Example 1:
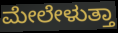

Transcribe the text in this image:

ಮೇಲೇಳುತ್ತಾ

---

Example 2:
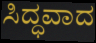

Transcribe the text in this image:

ಸಿದ್ಧವಾದ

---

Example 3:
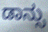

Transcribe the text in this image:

ಡಾನ್ಸು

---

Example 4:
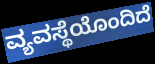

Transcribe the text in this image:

ವ್ಯವಸ್ಥೆಯೊಂದಿದೆ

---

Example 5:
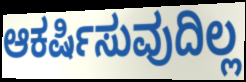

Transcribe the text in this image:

ಆಕರ್ಷಿಸುವುದಿಲ್ಲ